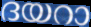
ദയറാ